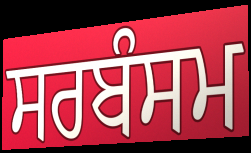
ਸਰਬੰਸਮ